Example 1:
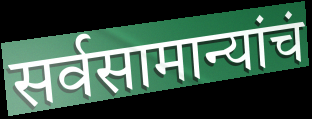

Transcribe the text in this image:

सर्वसामान्यांचं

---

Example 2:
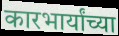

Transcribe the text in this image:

कारभार्यांच्या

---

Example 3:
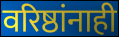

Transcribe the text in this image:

वरिष्ठांनाही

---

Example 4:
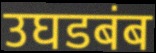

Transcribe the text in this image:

उघडबंब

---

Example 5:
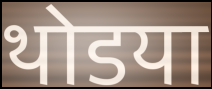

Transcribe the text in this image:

थोडया